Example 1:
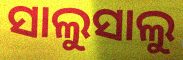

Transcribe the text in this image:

ସାଲୁସାଲୁ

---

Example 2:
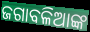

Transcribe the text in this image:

ଜଗାବଳିଆଙ୍କ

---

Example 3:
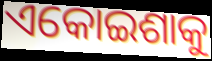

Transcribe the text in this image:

ଏକୋଇଶାକୁ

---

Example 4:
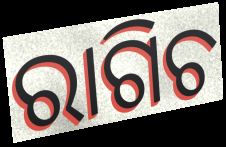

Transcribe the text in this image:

ରାଗିଚ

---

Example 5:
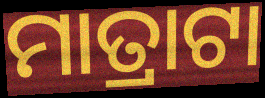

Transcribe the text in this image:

ମାତ୍ରାଟା